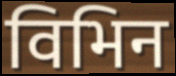
विभिन